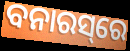
ବନାରସ୍‌ରେ